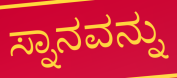
ಸ್ನಾನವನ್ನು